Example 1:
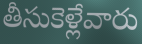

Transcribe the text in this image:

తీసుకెళ్లేవారు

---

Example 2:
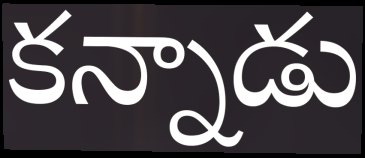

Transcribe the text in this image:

కన్నాడు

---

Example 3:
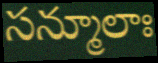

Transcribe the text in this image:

సన్మూలాః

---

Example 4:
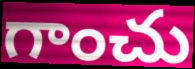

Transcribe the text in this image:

గాంచు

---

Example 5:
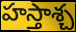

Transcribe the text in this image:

హస్తాశ్చ